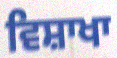
ਵਿਸ਼ਾਖਾ